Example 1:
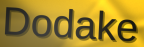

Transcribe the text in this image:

Dodake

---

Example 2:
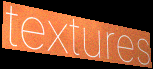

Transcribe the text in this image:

textures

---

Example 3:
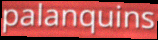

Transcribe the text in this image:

palanquins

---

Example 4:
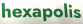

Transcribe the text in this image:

hexapolis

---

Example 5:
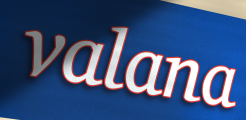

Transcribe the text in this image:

valana